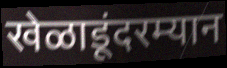
खेळाडूंदरम्यान